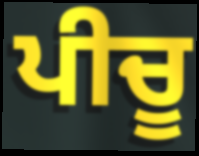
ਪੀਚੂ